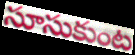
సూసుకుంట